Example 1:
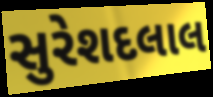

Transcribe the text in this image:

સુરેશદલાલ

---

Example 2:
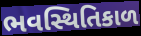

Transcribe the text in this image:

ભવસ્થિતિકાળ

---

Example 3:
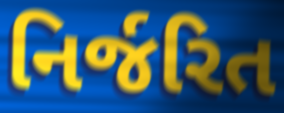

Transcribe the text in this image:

નિર્જરિત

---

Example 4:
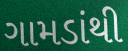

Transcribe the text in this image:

ગામડાંથી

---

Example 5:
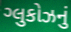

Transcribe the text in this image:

ગ્લુકોઝનું